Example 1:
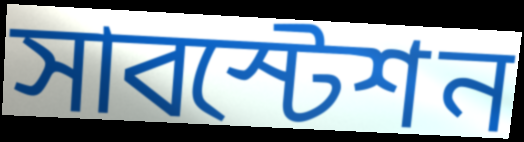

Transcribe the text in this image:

সাবস্টেশন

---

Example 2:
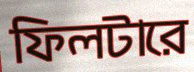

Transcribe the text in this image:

ফিলটারে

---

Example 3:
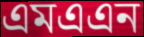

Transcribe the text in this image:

এমএএন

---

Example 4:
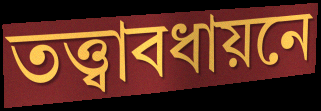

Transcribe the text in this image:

তত্ত্বাবধায়নে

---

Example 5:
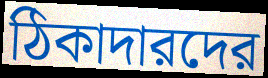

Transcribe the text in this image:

ঠিকাদারদের